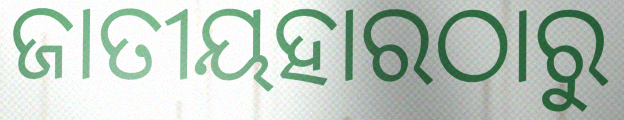
ଜାତୀୟହାରଠାରୁ